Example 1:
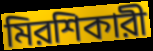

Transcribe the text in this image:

মিরশিকারী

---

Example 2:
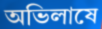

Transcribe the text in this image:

অভিলাষে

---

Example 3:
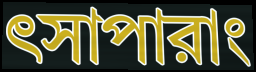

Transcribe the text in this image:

ৎসাপারাং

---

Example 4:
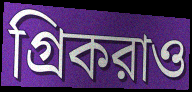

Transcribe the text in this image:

গ্রিকরাও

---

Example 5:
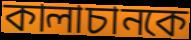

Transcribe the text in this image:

কালাচানকে